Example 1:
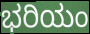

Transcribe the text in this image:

ಭರಿಯಂ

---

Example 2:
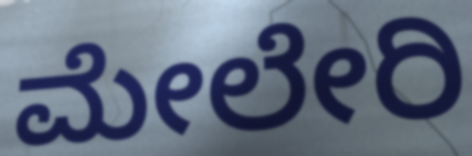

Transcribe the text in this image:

ಮೇಲೇರಿ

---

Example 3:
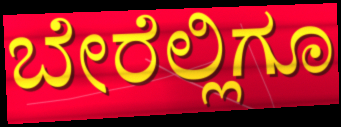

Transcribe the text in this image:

ಬೇರೆಲ್ಲಿಗೂ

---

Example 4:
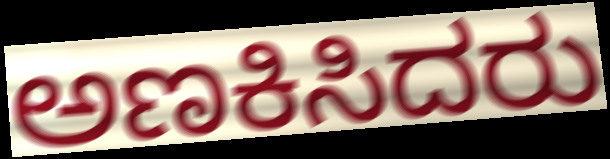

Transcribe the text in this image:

ಅಣಕಿಸಿದರು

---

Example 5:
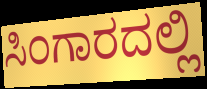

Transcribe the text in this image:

ಸಿಂಗಾರದಲ್ಲಿ